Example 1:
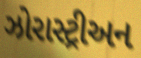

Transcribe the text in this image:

ઝોરાસ્ટ્રીઅન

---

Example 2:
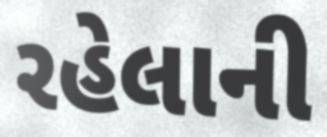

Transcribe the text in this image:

રહેલાની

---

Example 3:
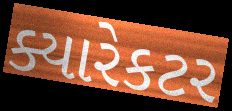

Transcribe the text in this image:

ક્યારેકટર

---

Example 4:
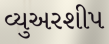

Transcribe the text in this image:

વ્યુઅરશીપ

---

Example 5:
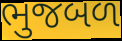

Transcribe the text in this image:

ભુજબળ